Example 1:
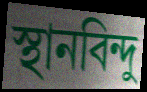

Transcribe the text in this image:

স্থানবিন্দু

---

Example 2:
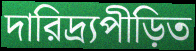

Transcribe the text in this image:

দারিদ্র্যপীড়িত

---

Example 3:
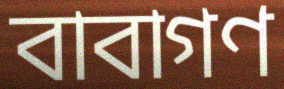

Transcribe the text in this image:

বাবাগণ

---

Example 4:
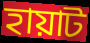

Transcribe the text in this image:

হায়াট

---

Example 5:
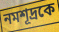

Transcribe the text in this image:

নমশূদ্রকে